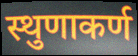
स्थुणाकर्ण